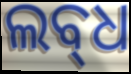
ଲବ୍‌ଧ